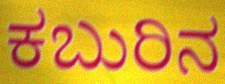
ಕಬುರಿನ